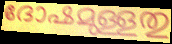
ദോഷമുള്ളതു